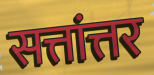
सत्तांत्तर